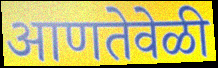
आणतेवेळी